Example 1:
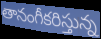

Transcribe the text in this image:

తానంగీకరిస్తున్న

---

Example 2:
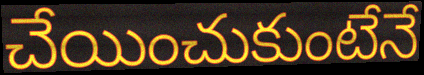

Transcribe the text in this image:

చేయించుకుంటేనే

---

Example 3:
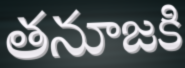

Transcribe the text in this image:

తనూజకి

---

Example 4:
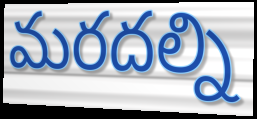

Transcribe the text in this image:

మరదల్ని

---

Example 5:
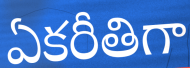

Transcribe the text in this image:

ఏకరీతిగా